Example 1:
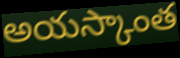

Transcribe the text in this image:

అయస్కాంత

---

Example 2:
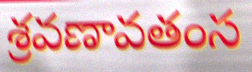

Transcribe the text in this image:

శ్రవణావతంస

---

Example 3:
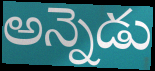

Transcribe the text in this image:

అన్నెడు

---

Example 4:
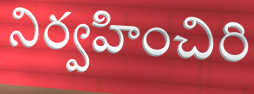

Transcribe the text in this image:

నిర్వహించిరి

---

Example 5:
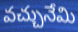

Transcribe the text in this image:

వచ్చునేమి